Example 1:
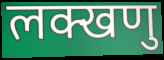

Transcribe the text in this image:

लक्खणु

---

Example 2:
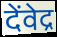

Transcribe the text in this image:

देंवेद्र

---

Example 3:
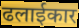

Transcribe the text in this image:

ढलाईकार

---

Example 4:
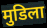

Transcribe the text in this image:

मुडिला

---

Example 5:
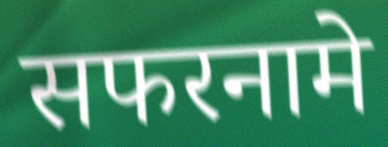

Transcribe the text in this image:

सफरनामे